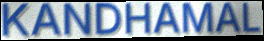
KANDHAMAL